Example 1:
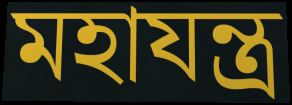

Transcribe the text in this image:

মহাযন্ত্র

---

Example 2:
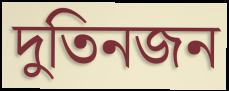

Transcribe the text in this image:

দুতিনজন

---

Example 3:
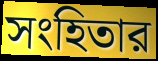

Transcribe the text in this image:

সংহিতার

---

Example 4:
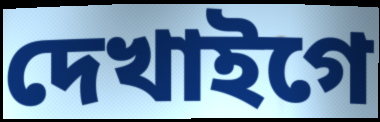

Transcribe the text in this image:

দেখাইগে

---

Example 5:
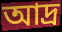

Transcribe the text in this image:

আদ্র